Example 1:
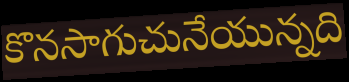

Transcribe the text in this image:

కొనసాగుచునేయున్నది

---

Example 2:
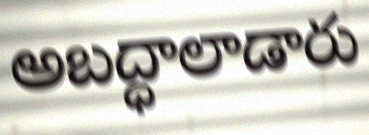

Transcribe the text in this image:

అబద్ధాలాడారు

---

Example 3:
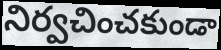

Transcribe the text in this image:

నిర్వచించకుండా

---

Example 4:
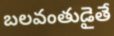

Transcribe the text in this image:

బలవంతుడైతే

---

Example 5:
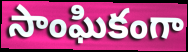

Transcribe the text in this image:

సాంఘికంగా